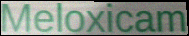
Meloxicam